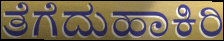
ತೆಗೆದುಹಾಕಿರಿ